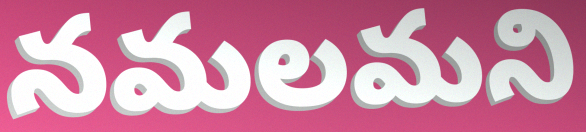
నమలమని